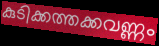
കുടിക്കത്തക്കവണ്ണം